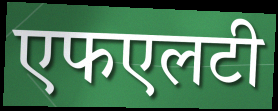
एफएलटी